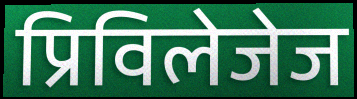
प्रिविलेजेज